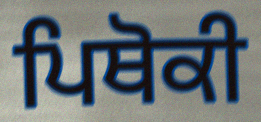
ਪਿਥੋਕੀ